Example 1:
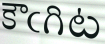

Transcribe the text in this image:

కౌఁగిట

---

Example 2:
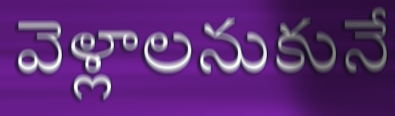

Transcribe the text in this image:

వెళ్లాలనుకునే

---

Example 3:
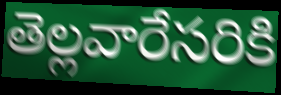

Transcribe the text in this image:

తెల్లవారేసరికి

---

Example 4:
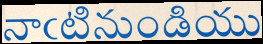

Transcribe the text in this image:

నాఁటినుండియు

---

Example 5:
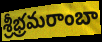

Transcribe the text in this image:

శ్రీభ్రమరాంబా